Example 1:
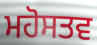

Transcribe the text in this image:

ਮਹੋਸਤਵ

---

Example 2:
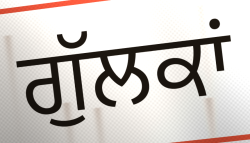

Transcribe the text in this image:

ਗੁੱਲਕਾਂ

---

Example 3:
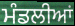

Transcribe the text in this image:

ਮੰਡਲੀਆਂ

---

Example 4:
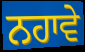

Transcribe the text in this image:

ਨਹਾਵੇ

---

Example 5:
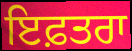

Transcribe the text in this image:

ਇਫ਼ਤਰਾ